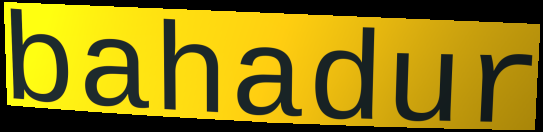
bahadur